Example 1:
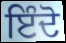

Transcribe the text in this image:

ਇੰਦੋ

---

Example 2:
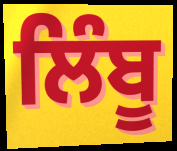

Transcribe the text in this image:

ਲਿੰਬੂ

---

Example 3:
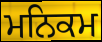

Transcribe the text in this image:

ਮਨਿਕਮ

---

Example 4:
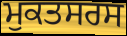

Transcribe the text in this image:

ਮੁਕਤਸਰਸ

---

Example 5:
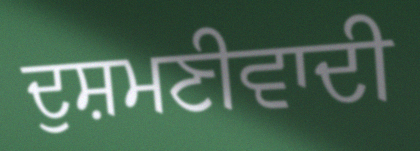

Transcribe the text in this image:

ਦੁਸ਼ਮਣੀਵਾਦੀ